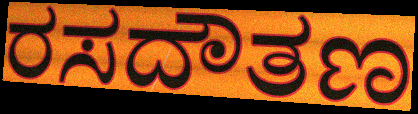
ರಸದೌತಣ